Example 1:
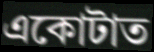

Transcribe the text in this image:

একোটাত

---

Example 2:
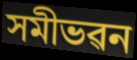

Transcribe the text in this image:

সমীভৱন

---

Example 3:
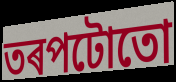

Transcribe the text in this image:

তৰপটোতো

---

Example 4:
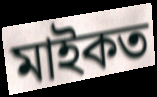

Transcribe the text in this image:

মাইকত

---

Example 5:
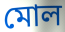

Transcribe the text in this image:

মোল